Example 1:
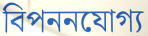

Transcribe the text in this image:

বিপননযোগ্য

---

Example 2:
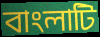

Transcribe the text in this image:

বাংলাটি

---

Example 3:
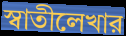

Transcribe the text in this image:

স্বাতীলেখার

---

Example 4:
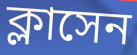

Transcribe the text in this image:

ক্লাসেন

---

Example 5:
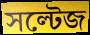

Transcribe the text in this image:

সল্টেজ